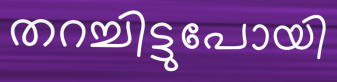
തറച്ചിട്ടുപോയി